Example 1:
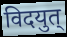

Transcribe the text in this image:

विदयुत्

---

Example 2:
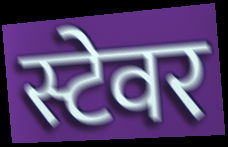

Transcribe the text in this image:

स्टेवर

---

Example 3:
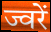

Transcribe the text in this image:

ज्वरें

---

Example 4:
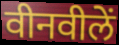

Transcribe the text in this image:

वीनवीलें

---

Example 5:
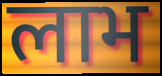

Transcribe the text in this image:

लाभ